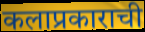
कलाप्रकाराची